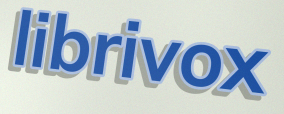
librivox